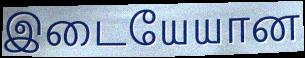
இடையேயான